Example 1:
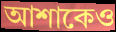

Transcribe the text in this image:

আশাকেও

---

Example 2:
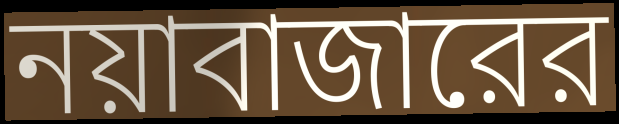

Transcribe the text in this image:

নয়াবাজারের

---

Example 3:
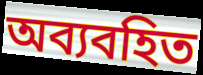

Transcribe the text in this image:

অব্যবহিত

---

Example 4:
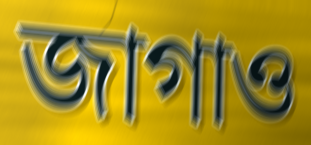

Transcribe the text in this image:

জাগাও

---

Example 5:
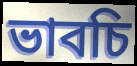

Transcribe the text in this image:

ভাবচি